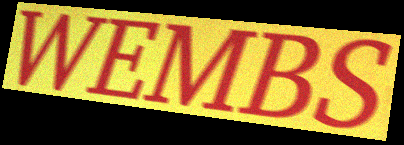
WEMBS